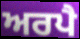
ਅਰਪੈ